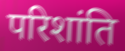
परिशांति